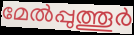
മേൽപ്പുത്തൂർ